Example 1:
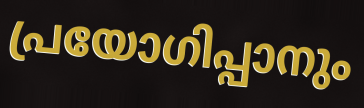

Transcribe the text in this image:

പ്രയോഗിപ്പാനും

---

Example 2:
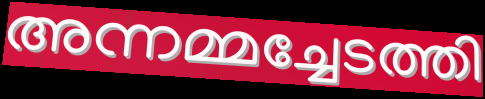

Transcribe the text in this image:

അന്നമ്മച്ചേടത്തി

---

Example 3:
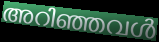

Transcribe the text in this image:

അറിഞ്ഞവൾ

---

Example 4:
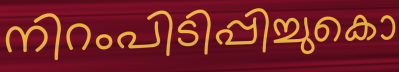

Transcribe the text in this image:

നിറംപിടിപ്പിച്ചുകൊ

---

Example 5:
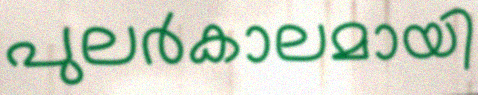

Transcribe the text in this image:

പുലർകാലമായി